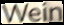
Wein